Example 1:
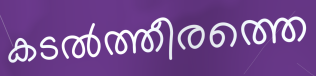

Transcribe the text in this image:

കടൽത്തീരത്തെ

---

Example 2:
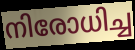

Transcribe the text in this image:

നിരോധിച്ച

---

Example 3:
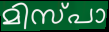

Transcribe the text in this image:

മിസ്പാ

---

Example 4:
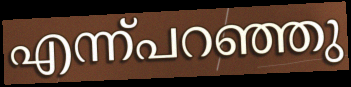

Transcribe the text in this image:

എന്ന്പറഞ്ഞു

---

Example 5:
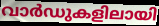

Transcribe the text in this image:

വാർഡുകളിലായി